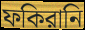
ফকিরানি